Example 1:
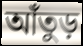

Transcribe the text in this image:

আঁতুড়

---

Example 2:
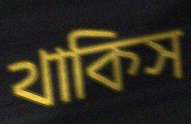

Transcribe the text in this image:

থাকিস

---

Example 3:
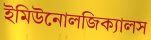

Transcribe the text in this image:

ইমিউনোলজিক্যালস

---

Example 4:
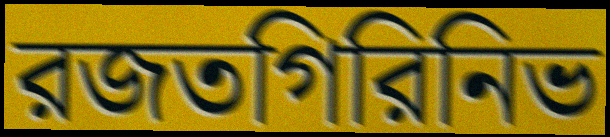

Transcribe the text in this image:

রজতগিরিনিভ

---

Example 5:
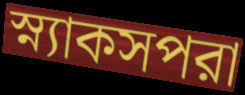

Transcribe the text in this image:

স্ন্যাকসপরা